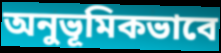
অনুভূমিকভাবে